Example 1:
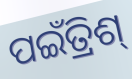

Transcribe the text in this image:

ପଇଁତ୍ରିଶ୍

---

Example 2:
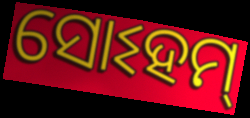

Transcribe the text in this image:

ସୋଽହମ୍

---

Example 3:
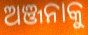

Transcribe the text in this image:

ଅଞ୍ଜନାକୁ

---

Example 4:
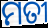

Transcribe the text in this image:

ମତୀ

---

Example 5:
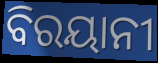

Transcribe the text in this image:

ବିରୟାନୀ